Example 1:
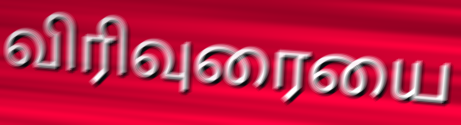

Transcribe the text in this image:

விரிவுரையை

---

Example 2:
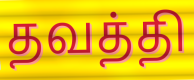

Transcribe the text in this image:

தவத்தி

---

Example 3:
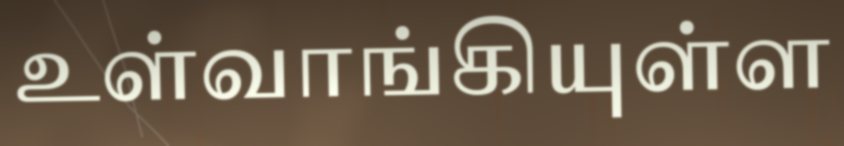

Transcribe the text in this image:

உள்வாங்கியுள்ள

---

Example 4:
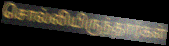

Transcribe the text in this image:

சொல்லியிருந்தார்கள்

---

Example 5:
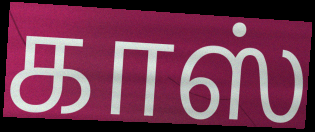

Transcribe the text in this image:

காஸ்